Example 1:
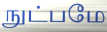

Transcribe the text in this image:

நுட்பமே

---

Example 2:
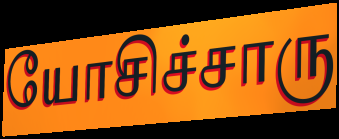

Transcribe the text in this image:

யோசிச்சாரு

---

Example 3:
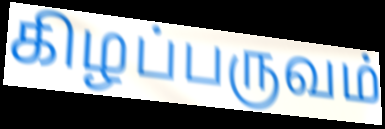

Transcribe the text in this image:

கிழப்பருவம்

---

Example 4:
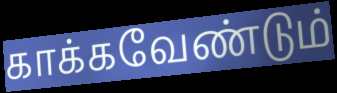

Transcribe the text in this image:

காக்கவேண்டும்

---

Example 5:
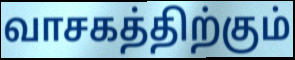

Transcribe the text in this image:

வாசகத்திற்கும்